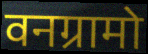
वनग्रामो